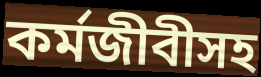
কর্মজীবীসহ